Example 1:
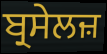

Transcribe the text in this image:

ਬ੍ਰਸੇਲਜ਼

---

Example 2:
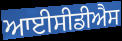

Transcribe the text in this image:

ਆਈਸੀਡੀਐਸ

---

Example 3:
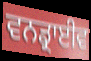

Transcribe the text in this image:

ਵਨਡ੍ਰਾਈਵ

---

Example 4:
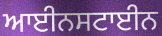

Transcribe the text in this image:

ਆਈਨਸਟਾਈਨ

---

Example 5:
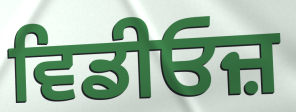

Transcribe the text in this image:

ਵਿਡੀਓਜ਼